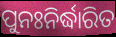
ପୁନଃନିର୍ଦ୍ଧାରିତ